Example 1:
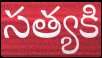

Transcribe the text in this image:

సత్యకి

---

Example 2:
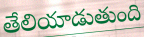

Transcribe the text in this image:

తేలియాడుతుంది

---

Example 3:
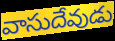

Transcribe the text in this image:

వాసుదేవుడు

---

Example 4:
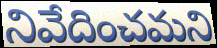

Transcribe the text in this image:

నివేదించమని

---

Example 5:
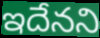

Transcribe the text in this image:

ఇదేనని